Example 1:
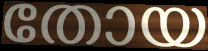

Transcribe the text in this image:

തോയ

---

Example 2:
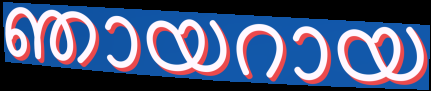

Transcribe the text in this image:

ഞായറായ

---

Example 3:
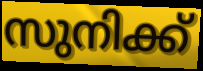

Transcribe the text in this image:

സുനിക്ക്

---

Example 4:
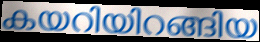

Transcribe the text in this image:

കയറിയിറങ്ങിയ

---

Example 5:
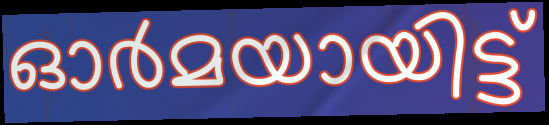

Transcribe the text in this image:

ഓർമയായിട്ട്